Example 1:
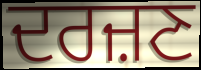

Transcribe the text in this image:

ਦਰਜ਼ਣ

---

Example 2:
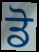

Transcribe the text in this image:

ਡੋ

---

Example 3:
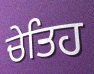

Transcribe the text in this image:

ਚੇਤਿਹ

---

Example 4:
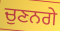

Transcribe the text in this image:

ਚੁਣਨਗੇ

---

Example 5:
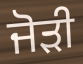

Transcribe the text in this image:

ਜੋੜੀ